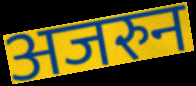
अजरुन